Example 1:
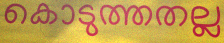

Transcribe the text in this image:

കൊടുത്തതല്ല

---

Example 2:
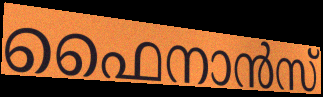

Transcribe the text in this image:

ഫൈനാൻസ്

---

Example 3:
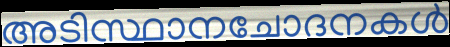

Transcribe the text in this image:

അടിസ്ഥാനചോദനകൾ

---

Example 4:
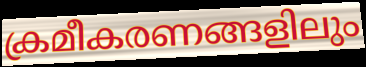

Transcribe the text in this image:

ക്രമീകരണങ്ങളിലും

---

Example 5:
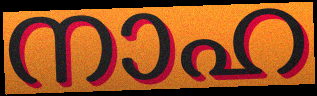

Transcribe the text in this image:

നാഹ